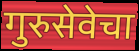
गुरुसेवेचा